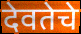
देवतेचे